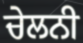
ਚੇਲਨੀ